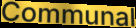
Communal